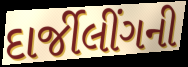
દાર્જીલીંગની